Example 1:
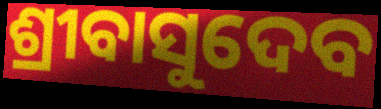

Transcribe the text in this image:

ଶ୍ରୀବାସୁଦେବ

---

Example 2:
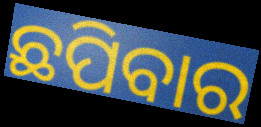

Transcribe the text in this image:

ଛପିବାର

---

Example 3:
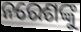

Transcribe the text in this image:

ନରେଶଙ୍କୁ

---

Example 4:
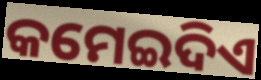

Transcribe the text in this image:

କମେଇଦିଏ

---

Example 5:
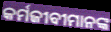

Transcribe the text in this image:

କର୍ମଜୀବୀମାନଙ୍କ